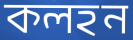
কলহন